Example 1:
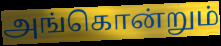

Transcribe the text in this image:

அங்கொன்றும்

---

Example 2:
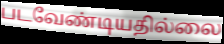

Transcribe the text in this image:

படவேண்டியதில்லை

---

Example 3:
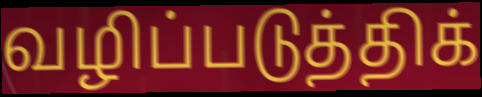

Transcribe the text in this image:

வழிப்படுத்திக்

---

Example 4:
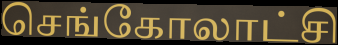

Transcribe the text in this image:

செங்கோலாட்சி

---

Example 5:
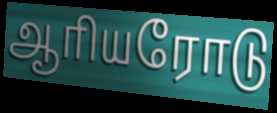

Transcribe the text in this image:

ஆரியரோடு